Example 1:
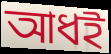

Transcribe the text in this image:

আধই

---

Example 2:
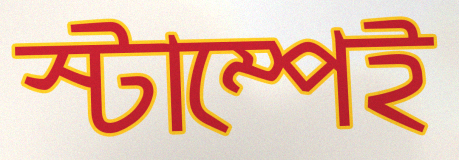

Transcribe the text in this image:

স্টাম্পেই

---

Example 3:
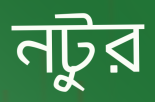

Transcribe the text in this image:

নটুর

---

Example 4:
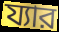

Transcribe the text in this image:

য্যার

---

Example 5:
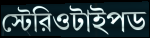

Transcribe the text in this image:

স্টেরিওটাইপড